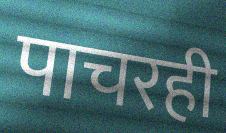
पाचरही